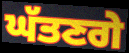
ਘੱਤਣਗੇ